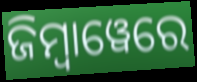
ଜିମ୍ୱାୱେରେ